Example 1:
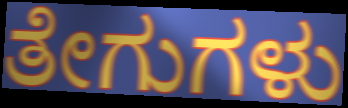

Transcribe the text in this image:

ತೇಗುಗಳು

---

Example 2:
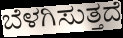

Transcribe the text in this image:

ಬೆಳಗಿಸುತ್ತದೆ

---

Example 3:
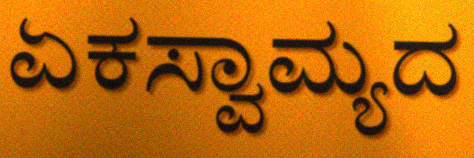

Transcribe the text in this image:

ಏಕಸ್ವಾಮ್ಯದ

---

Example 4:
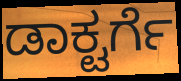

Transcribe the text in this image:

ಡಾಕ್ಟರ್ಗೆ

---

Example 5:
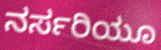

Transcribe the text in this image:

ನರ್ಸರಿಯೂ